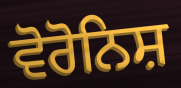
ਵੋਰੋਨਿਸ਼